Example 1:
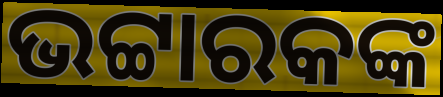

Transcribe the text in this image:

ଭଟ୍ଟାରକଙ୍କ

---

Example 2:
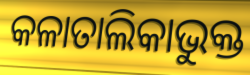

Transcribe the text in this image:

କଳାତାଲିକାଭୁକ୍ତ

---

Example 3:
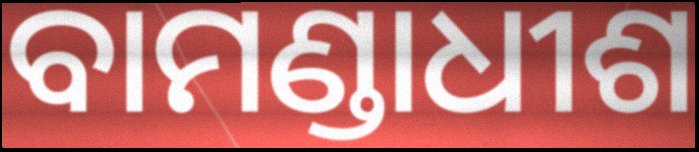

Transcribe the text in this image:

ବାମଣ୍ଡାଧୀଶ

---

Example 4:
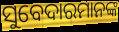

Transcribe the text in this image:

ସୁବେଦାରମାନଙ୍କ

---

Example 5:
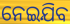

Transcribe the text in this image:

ନେଇଯିବ